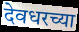
देवधरच्या